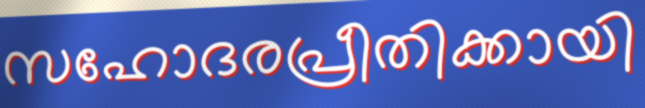
സഹോദരപ്രീതിക്കായി